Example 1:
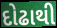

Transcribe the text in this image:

દોઢાથી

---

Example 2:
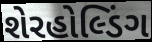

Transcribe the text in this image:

શેરહોલ્ડિંગ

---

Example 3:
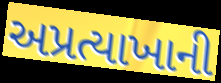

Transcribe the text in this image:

અપ્રત્યાખાની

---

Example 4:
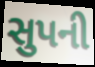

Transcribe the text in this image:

સુપની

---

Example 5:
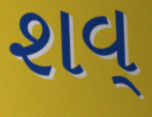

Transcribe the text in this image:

શવ્